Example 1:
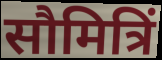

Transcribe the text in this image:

सौमित्रिं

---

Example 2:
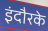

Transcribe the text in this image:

इंदौरके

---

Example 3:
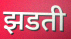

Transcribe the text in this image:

झडती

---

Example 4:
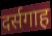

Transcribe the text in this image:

दर्सगाह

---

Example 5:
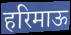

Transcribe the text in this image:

हरिमाऊ